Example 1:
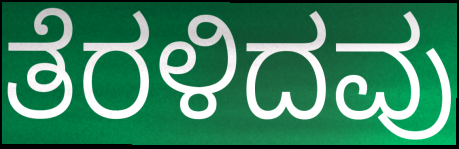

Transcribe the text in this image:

ತೆರಳಿದವು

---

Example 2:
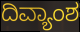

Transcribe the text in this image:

ದಿವ್ಯಾಂಶ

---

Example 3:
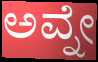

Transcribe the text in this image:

ಅವ್ನೇ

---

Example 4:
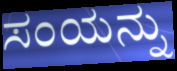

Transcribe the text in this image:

ಸಂಯನ್ನು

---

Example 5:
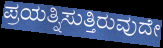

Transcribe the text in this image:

ಪ್ರಯತ್ನಿಸುತ್ತಿರುವುದೇ